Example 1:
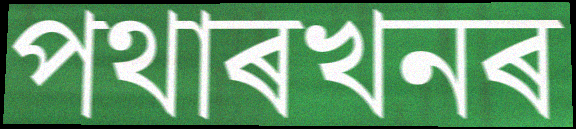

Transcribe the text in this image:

পথাৰখনৰ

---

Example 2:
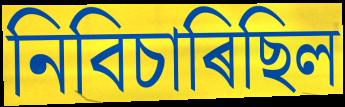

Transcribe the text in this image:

নিবিচাৰিছিল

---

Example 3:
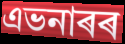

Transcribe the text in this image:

এভনাৰৰ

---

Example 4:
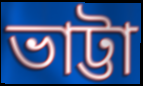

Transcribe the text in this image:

ভাট্টা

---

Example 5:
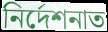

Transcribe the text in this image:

নিৰ্দেশনাত